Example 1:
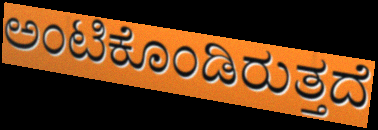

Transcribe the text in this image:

ಅಂಟಿಕೊಂಡಿರುತ್ತದೆ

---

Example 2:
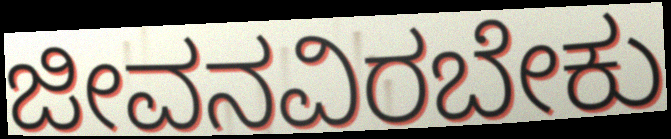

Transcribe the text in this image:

ಜೀವನವಿರಬೇಕು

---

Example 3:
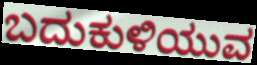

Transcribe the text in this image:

ಬದುಕುಳಿಯುವ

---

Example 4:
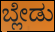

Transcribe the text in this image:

ಬ್ಲೇಡು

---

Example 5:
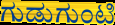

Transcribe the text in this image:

ಗುಡುಗುಂಟಿ